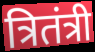
त्रितंत्री